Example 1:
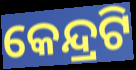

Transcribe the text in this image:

କେନ୍ଦ୍ରଟି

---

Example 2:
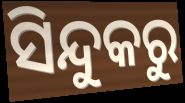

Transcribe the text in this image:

ସିନ୍ଦୁକରୁ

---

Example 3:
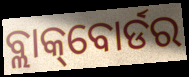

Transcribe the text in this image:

ବ୍ଲାକ୍‌ବୋର୍ଡର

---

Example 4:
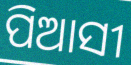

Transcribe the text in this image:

ପିଆସୀ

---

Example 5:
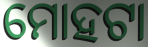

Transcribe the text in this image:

ମୋହଟା